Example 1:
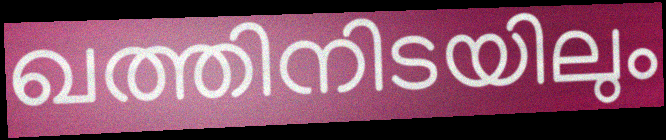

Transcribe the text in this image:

ഖത്തിനിടയിലും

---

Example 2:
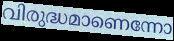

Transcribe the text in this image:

വിരുദ്ധമാണെന്നോ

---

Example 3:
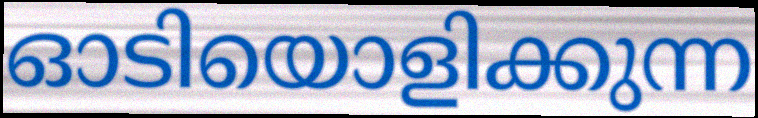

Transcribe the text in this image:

ഓടിയൊളിക്കുന്ന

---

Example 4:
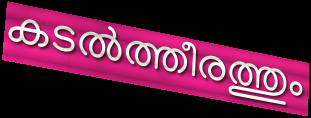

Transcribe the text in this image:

കടൽത്തീരത്തും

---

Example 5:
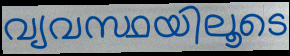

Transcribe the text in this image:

വ്യവസ്ഥയിലൂടെ